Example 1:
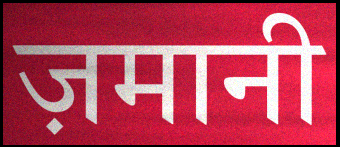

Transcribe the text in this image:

ज़मानी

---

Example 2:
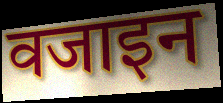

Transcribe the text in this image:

वजाइन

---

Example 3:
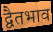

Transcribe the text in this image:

द्वैतभाव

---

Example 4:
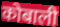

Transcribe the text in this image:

कोबाली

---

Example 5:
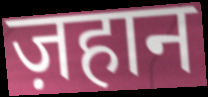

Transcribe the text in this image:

ज़हान